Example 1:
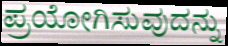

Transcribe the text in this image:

ಪ್ರಯೋಗಿಸುವುದನ್ನು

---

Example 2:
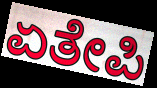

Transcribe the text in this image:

ಏತೇಪಿ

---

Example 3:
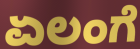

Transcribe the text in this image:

ಏಲಂಗೆ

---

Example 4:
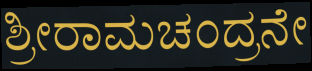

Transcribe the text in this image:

ಶ್ರೀರಾಮಚಂದ್ರನೇ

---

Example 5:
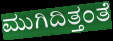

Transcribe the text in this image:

ಮುಗಿದಿತ್ತಂತೆ